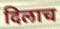
दिलाच